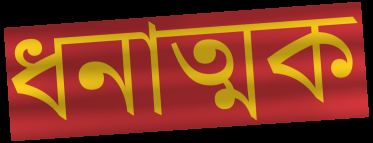
ধনাত্মক